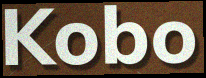
Kobo